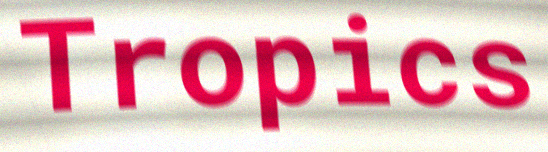
Tropics